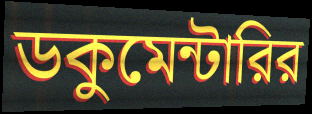
ডকুমেন্টারির